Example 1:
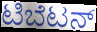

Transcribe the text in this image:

ಟಿಬೆಟನ್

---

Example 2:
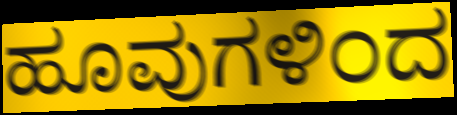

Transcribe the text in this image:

ಹೂವುಗಳಿಂದ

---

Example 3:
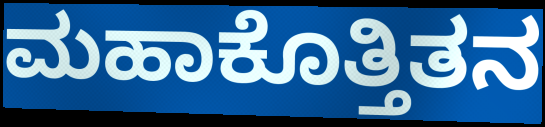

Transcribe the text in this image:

ಮಹಾಕೊತ್ತಿತನ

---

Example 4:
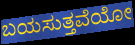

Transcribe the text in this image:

ಬಯಸುತ್ತವೆಯೋ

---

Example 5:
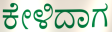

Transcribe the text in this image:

ಕೇಳಿದಾಗ